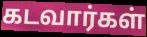
கடவார்கள்